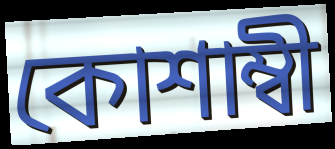
কোশাম্বী